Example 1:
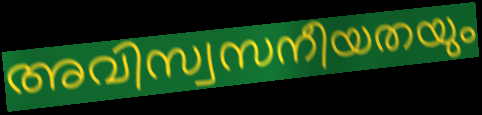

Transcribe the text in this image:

അവിസ്വസനീയതയും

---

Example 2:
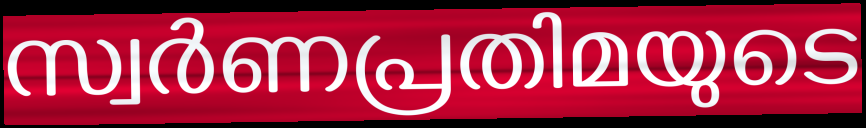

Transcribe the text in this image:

സ്വർണപ്രതിമയുടെ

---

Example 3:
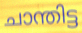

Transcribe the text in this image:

ചാന്തിട്ട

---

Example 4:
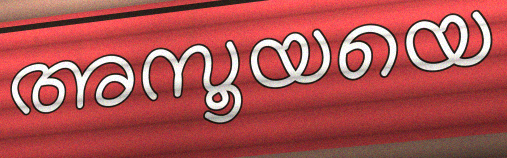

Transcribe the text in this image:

അസൂയയെ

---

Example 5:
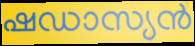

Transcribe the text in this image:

ഷഡാസ്യൻ